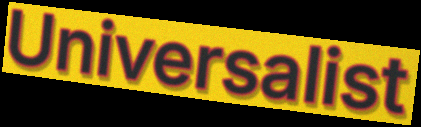
Universalist